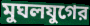
মুঘলযুগের